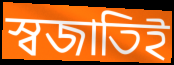
স্বজাতিই